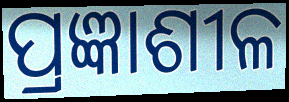
ପ୍ରଜ୍ଞାଶୀଳ